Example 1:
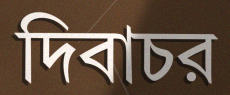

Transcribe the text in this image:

দিবাচর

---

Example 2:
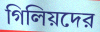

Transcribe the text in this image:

গিলিয়দের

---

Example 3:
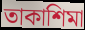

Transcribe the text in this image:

তাকাশিমা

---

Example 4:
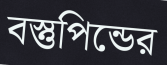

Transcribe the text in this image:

বস্তুপিন্ডের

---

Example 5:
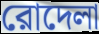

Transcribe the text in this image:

রোদেলা